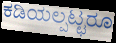
ಕಡಿಯಲ್ಪಟ್ಟರೂ